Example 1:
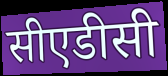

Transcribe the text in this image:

सीएडीसी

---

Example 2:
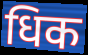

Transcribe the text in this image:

धिक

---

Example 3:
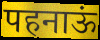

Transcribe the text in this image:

पहनाऊं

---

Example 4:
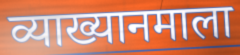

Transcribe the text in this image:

व्याख्यानमाला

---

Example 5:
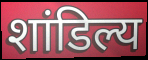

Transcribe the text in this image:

शांडिल्य